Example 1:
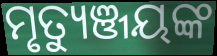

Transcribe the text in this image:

ମୃତ୍ୟୁଞ୍ଜୟଙ୍କ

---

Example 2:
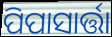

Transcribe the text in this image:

ପିପାସାର୍ତ୍ତା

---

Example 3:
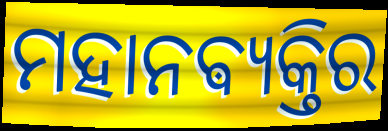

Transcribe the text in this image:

ମହାନଵ୍ୟକ୍ତିର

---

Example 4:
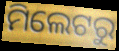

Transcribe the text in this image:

ମିଲେଟରୁ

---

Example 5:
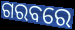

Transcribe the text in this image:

ଗରବରେ